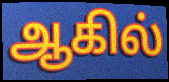
ஆகில்